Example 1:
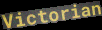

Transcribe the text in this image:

Victorian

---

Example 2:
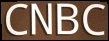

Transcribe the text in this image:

CNBC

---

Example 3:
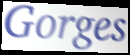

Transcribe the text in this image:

Gorges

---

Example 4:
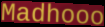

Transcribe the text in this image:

Madhooo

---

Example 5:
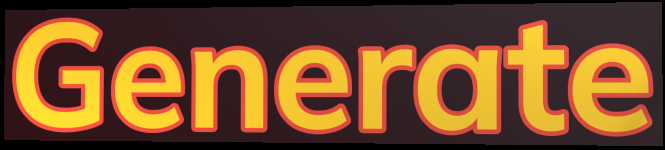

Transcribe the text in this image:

Generate